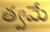
త్వమే